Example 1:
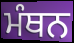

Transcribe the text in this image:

ਮੰਥਨ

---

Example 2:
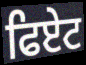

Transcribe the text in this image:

ਫਿਏਟ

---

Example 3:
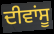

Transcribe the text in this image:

ਦੀਵਾਂਸੂ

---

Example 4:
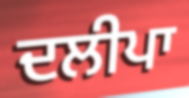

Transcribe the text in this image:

ਦਲੀਪਾ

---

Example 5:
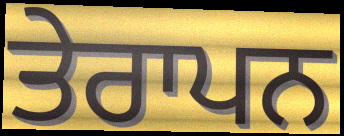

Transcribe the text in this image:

ਤੇਰਾਪਨ